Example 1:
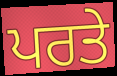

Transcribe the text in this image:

ਪਰਤੇ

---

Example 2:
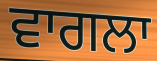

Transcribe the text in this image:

ਵਾਗਲਾ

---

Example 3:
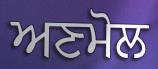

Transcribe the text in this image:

ਅਣਮੋਲ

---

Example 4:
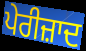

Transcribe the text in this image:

ਪੇਰੀਜ਼ਾਦ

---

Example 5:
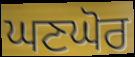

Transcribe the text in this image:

ਘਣਘੋਰ